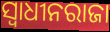
ସ୍ୱାଧୀନରାଜା